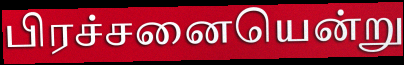
பிரச்சனையென்று